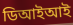
ডিআইআই